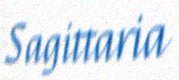
Sagittaria